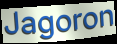
Jagoron